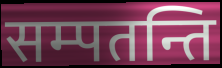
सम्पतन्ति